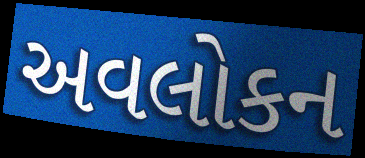
અવલોકન